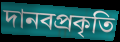
দানবপ্রকৃতি